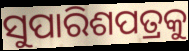
ସୁପାରିଶପତ୍ରକୁ